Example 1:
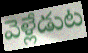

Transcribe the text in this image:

వెళ్లేడుట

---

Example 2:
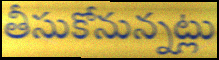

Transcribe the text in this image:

తీసుకోనున్నట్లు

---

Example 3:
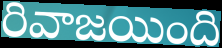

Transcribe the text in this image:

రివాజయింది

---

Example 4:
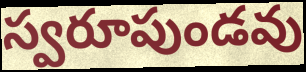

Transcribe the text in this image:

స్వరూపుండవు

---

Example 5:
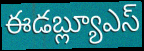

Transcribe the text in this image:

ఈడబ్ల్యూఎస్